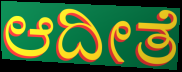
ಆದೀತೆ